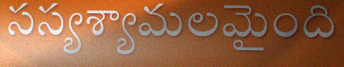
సస్యశ్యామలమైంది